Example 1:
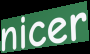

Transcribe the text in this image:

nicer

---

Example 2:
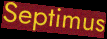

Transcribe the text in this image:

Septimus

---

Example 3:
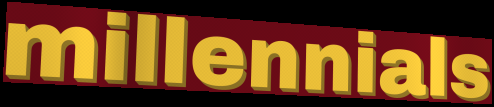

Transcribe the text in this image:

millennials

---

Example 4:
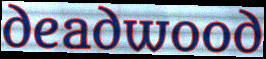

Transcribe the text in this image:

deadwood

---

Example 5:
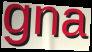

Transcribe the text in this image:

gna